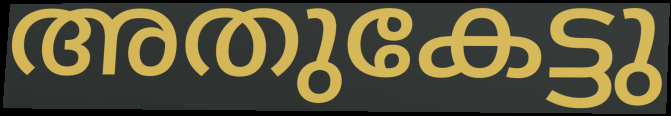
അതുകേട്ടു